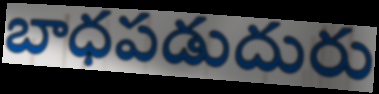
బాధపడుదురు